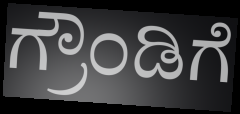
ಗ್ರೌಂಡಿಗೆ